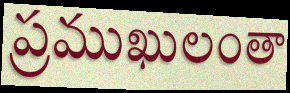
ప్రముఖులంతా